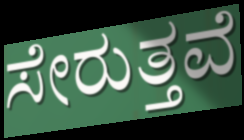
ಸೇರುತ್ತವೆ